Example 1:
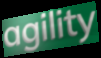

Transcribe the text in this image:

agility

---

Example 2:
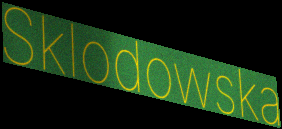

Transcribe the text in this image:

Sklodowska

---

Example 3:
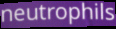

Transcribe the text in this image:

neutrophils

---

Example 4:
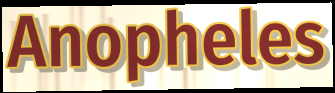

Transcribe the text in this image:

Anopheles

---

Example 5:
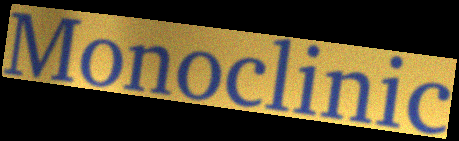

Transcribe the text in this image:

Monoclinic